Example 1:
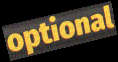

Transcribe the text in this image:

optional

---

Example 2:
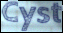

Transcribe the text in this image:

Cyst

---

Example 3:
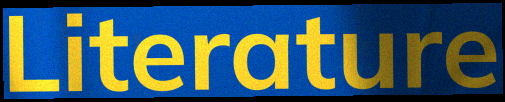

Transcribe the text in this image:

Literature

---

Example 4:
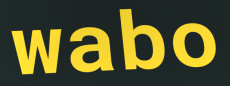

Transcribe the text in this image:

wabo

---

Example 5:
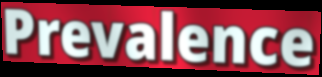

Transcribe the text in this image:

Prevalence